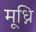
मूध्नि